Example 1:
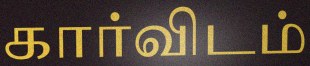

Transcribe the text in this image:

கார்விடம்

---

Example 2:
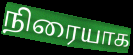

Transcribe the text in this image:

நிரையாக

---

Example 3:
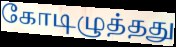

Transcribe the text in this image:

கோடிழுத்தது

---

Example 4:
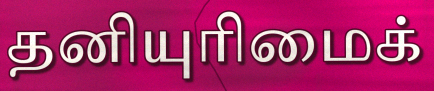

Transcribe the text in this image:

தனியுரிமைக்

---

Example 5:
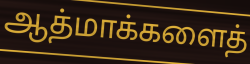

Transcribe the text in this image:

ஆத்மாக்களைத்